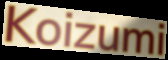
Koizumi